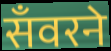
सँवरने